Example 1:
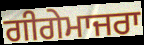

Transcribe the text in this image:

ਗੀਗੇਮਾਜਰਾ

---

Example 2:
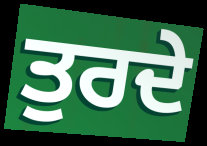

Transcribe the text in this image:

ਤੁਰਦੇ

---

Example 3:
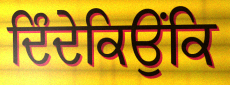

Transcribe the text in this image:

ਦਿੰਦੇਕਿਉਂਕਿ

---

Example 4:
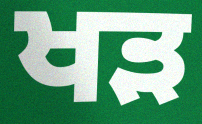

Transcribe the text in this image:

ਖੜ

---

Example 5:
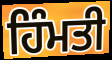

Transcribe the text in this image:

ਹਿੰਮਤੀ